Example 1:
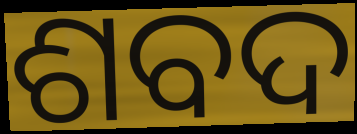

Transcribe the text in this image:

ଶବଦ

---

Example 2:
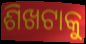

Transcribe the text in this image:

ଶିଖଟାକୁ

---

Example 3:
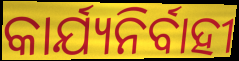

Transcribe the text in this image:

କାର୍ଯ୍ୟନିର୍ବାହୀ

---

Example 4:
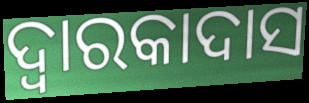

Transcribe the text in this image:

ଦ୍ୱାରକାଦାସ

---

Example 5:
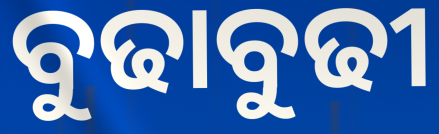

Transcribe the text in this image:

ବୁଢାବୁଢୀ